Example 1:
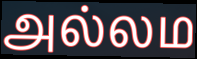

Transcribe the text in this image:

அல்லம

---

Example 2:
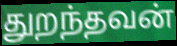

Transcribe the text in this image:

துறந்தவன்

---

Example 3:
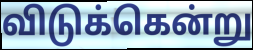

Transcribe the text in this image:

விடுக்கென்று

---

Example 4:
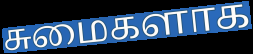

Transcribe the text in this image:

சுமைகளாக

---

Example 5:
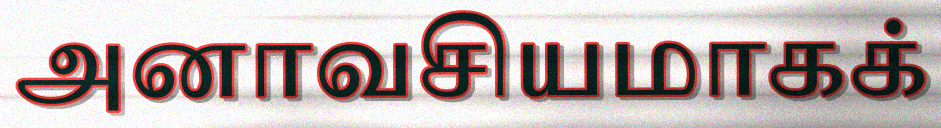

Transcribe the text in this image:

அனாவசியமாகக்